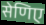
सेणिए